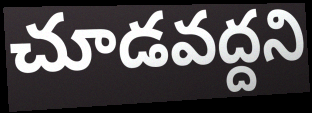
చూడవద్దని